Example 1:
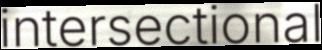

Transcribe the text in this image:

intersectional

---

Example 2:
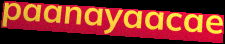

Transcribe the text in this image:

paanayaacae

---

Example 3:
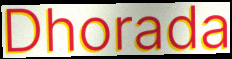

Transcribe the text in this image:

Dhorada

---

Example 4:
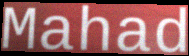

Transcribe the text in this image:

Mahad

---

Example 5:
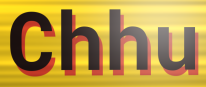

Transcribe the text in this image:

Chhu